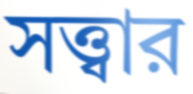
সত্ত্বার